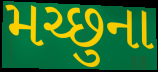
મચ્છુના